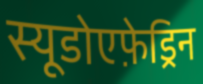
स्यूडोएफ़ेड्रिन